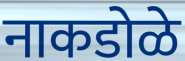
नाकडोळे